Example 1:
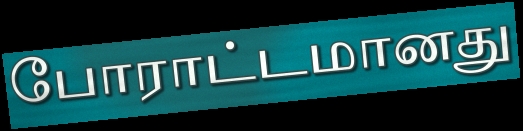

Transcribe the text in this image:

போராட்டமானது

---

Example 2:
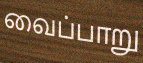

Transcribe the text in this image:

வைப்பாறு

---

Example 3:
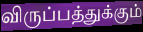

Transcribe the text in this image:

விருப்பத்துக்கும்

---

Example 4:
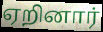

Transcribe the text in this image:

ஏறினார்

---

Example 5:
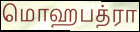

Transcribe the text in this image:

மொஹபத்ரா